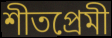
শীতপ্রেমী